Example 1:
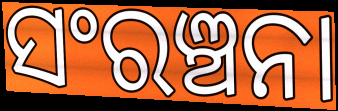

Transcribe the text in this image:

ସଂରଞ୍ଚନା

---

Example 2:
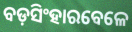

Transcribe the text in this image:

ବଡ଼ସିଂହାରବେଳେ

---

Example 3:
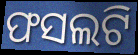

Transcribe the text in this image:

ଫସଲଟି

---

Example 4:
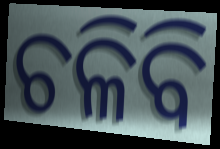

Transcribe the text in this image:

ଚଳିବି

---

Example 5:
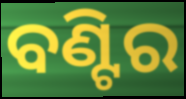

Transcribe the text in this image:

ବଣ୍ଟିର